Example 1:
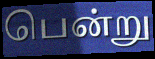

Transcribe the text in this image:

பென்று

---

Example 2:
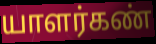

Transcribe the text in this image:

யாளர்கண்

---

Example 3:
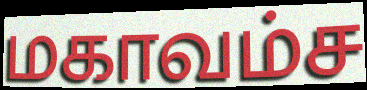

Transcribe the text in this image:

மகாவம்ச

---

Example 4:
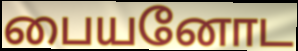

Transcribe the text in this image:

பையனோட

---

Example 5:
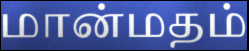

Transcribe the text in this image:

மான்மதம்